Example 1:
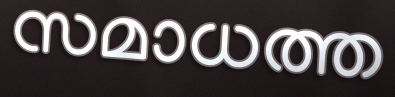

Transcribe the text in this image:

സമാധത്ത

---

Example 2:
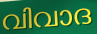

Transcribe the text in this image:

വിവാദ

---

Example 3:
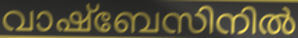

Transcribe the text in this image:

വാഷ്ബേസിനിൽ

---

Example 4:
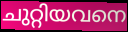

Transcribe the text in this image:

ചുറ്റിയവനെ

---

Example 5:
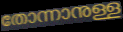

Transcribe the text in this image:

തോന്നാനുള്ള